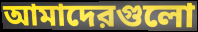
আমাদেরগুলো